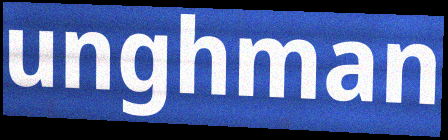
unghman